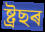
ষ্ট্ৰছৰ